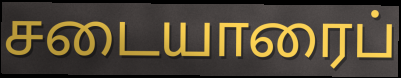
சடையாரைப்